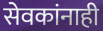
सेवकांनाही